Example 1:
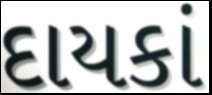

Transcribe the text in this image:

દાયકાં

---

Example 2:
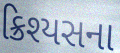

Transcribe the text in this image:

ક્રિશ્યસના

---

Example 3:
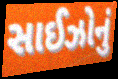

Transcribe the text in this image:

સાઈઝોનું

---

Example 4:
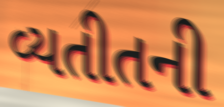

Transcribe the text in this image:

વ્યતીતની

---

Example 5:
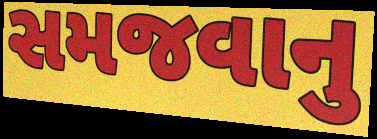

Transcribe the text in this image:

સમજવાનુ